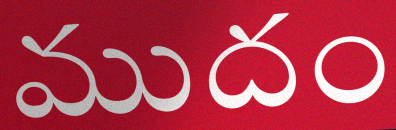
ముదం